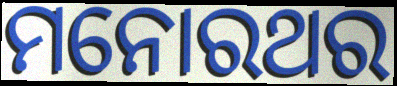
ମନୋରଥର